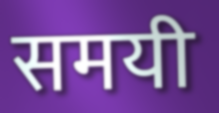
समयी